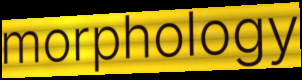
morphology